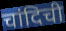
चांदिची